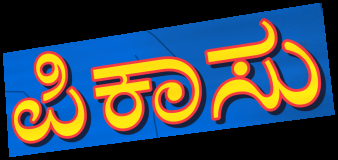
ಪಿಕಾಸು